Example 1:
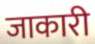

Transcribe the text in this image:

जाकारी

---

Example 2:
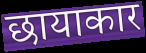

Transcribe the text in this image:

छायाकार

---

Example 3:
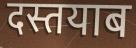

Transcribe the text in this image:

दस्तयाब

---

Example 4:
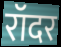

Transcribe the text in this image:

रॉदर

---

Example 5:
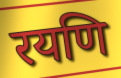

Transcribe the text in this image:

रयणि